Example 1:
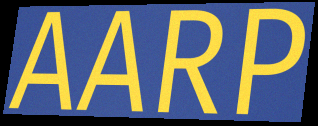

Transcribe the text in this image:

AARP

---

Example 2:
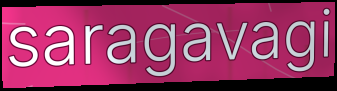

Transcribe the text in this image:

saragavagi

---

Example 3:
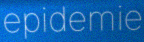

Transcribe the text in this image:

epidemie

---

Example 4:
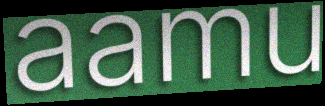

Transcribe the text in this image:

aamu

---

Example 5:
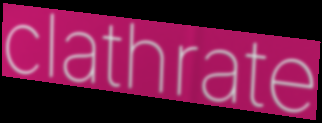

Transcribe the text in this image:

clathrate